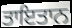
ਤਾਇਤਾਨ